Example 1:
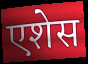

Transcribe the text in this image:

एशेस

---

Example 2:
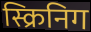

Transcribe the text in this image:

स्क्रिनिग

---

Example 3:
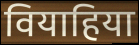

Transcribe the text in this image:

वियाहिया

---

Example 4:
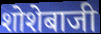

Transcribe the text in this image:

शोशेबाजी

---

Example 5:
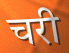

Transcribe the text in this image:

चरी